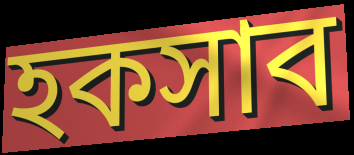
হকসাব